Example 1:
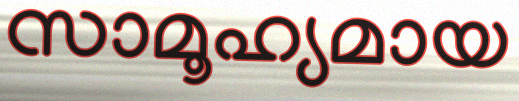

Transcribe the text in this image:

സാമൂഹ്യമായ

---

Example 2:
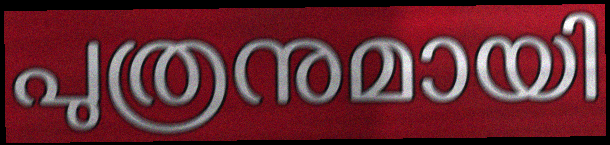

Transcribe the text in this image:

പുത്രനുമായി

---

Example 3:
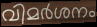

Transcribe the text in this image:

വിമർശനം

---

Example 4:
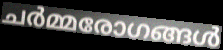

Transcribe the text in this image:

ചർമ്മരോഗങ്ങൾ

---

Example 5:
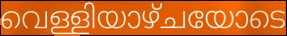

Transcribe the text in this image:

വെള്ളിയാഴ്ചയോടെ